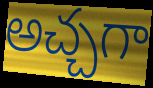
అచ్చగా